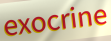
exocrine